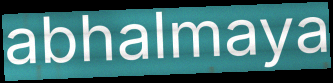
abhalmaya